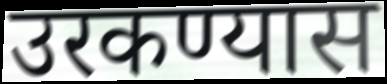
उरकण्यास